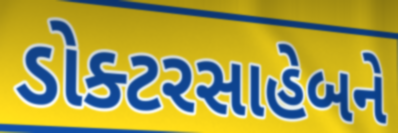
ડોક્ટરસાહેબને